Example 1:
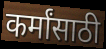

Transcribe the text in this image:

कर्मांसाठी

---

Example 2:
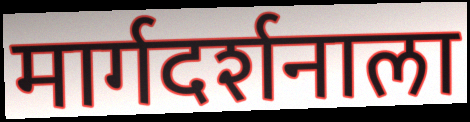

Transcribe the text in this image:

मार्गदर्शनाला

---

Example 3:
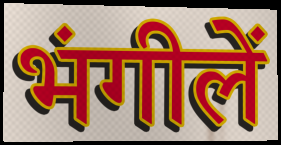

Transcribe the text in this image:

भंगीलें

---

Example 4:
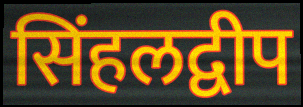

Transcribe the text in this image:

सिंहलद्वीप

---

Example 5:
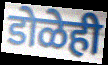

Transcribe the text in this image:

डोळेही